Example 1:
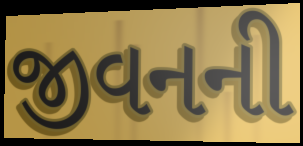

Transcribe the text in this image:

જીવનની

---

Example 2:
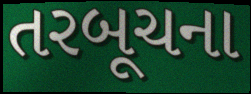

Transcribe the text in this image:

તરબૂચના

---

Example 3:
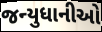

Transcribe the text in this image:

જન્યુધાનીઓ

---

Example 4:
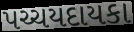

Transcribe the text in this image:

પચ્ચયદાયકા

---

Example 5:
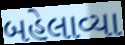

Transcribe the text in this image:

બહેલાવ્યા